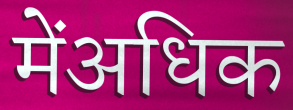
मेंअधिक